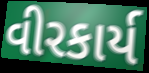
વીરકાર્ય